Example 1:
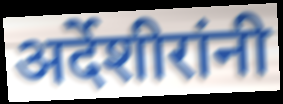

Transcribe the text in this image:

अर्देशीरांनी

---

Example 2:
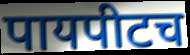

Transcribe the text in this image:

पायपीटच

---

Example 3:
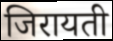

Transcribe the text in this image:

जिरायती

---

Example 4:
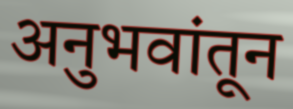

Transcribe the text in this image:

अनुभवांतून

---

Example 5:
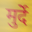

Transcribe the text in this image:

मुर्दे